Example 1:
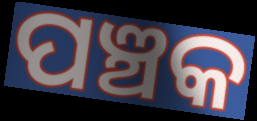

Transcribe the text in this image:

ପଞ୍ଚକ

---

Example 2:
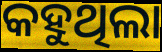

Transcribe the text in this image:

କହୁଥିଲା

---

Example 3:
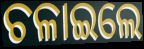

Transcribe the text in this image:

ଚଳାଇଲେ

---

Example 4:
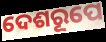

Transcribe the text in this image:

ଦେଶରୂପେ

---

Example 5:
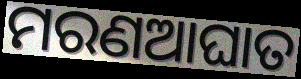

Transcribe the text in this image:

ମରଣଆଘାତ